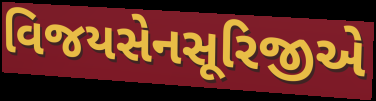
વિજયસેનસૂરિજીએ